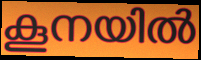
കൂനയിൽ